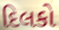
દિલકો